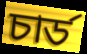
চার্ড